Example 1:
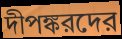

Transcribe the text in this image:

দীপঙ্করদের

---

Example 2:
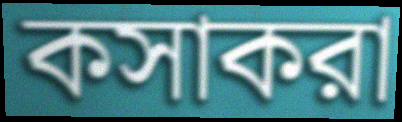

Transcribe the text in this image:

কসাকরা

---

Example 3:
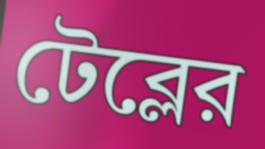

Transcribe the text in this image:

টেব্লের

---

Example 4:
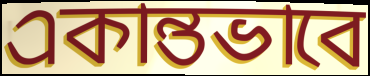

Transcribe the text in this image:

একান্তভাবে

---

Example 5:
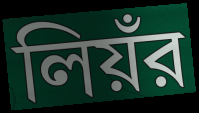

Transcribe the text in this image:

লিয়ঁর